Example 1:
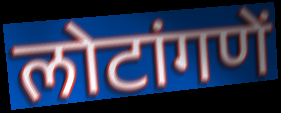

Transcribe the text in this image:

लोटांगणें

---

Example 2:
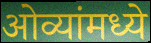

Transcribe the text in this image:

ओव्यांमध्ये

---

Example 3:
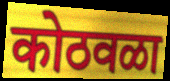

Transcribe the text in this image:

कोठवळा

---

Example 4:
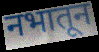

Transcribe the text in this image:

नभातून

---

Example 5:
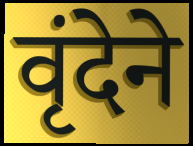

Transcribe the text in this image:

वृंदेने